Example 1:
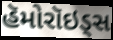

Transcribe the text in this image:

હૅમોરૉઇડ્સ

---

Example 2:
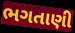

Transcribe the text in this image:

ભગતાણી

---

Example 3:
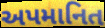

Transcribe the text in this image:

અપમાનિત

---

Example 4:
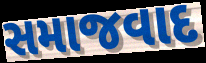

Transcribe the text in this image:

સમાજવાદ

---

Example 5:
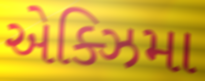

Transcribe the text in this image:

એક્ઝિમા